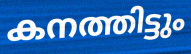
കനത്തിട്ടും